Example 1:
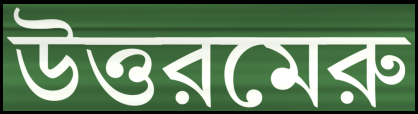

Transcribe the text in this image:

উত্তরমেরু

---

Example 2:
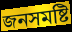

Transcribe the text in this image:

জনসমষ্টি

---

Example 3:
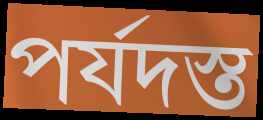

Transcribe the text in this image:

পর্যদস্ত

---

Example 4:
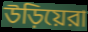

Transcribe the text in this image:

উড়িয়েরা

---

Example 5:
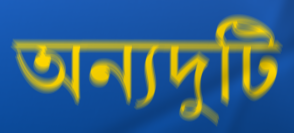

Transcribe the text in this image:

অন্যদুটি